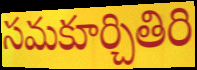
సమకూర్చితిరి